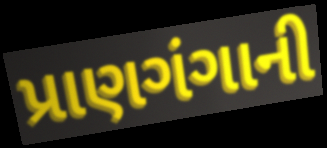
પ્રાણગંગાની